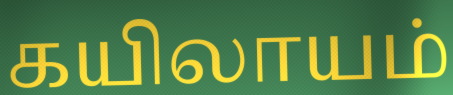
கயிலாயம்